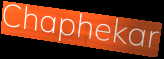
Chaphekar